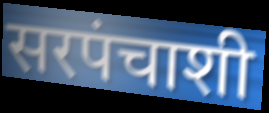
सरपंचाशी